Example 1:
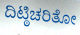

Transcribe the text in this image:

ದಿಟ್ಠಿಚರಿತೋ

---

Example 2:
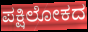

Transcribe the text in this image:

ಪಕ್ಷಿಲೋಕದ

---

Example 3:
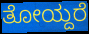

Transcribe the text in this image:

ತೋಯ್ದರೆ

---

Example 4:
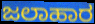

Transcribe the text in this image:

ಜಲಾಹಾರ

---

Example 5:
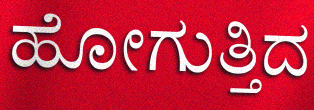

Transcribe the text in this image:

ಹೋಗುತ್ತಿದ